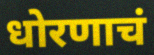
धोरणाचं